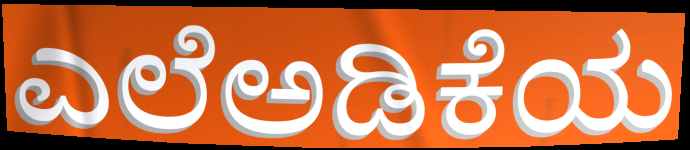
ಎಲೆಅಡಿಕೆಯ